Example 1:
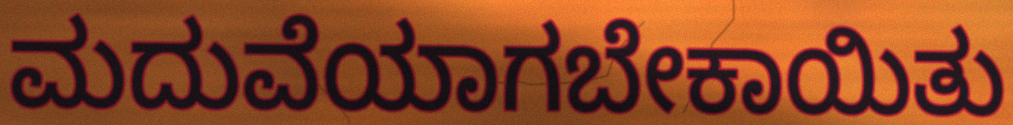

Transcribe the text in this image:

ಮದುವೆಯಾಗಬೇಕಾಯಿತು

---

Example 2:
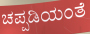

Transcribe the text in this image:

ಚಪ್ಪಡಿಯಂತೆ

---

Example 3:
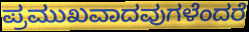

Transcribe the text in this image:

ಪ್ರಮುಖವಾದವುಗಳೆಂದರೆ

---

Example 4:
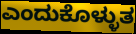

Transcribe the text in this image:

ಎಂದುಕೊಳ್ಳುತ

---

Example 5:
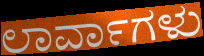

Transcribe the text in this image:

ಲಾರ್ವಾಗಳು